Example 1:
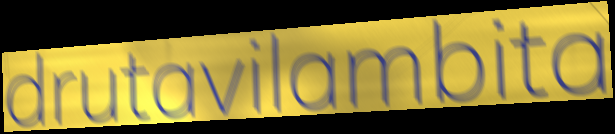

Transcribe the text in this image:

drutavilambita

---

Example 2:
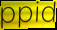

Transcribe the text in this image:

ppid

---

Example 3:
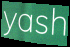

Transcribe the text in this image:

yash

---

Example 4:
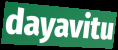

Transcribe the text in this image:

dayavitu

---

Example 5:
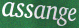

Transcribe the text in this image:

assange